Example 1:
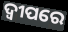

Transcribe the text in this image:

ଦ୍ୱୀପରେ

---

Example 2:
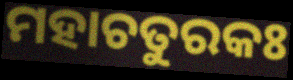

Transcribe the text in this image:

ମହାଚତୁରକଃ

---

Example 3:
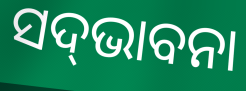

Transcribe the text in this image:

ସଦ୍‌ଭାବନା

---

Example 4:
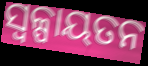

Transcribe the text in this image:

ସ୍ୱଳ୍ପାୟତନ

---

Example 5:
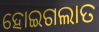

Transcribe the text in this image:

ହୋଇଗଲାତ